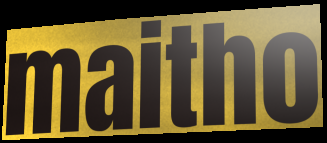
maitho